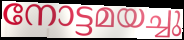
നോട്ടമയച്ചു